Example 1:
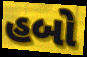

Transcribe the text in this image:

હબો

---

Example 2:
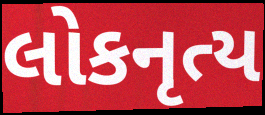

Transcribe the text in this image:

લોકનૃત્ય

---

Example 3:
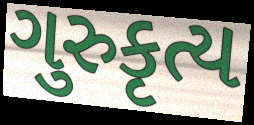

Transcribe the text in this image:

ગુરુકૃત્ય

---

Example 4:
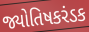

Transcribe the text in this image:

જ્યોતિષકરંડક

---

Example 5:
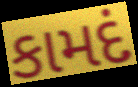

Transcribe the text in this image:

કામદં